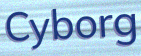
Cyborg